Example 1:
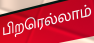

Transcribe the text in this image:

பிறரெல்லாம்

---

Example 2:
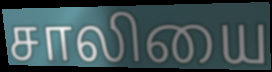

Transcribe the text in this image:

சாலியை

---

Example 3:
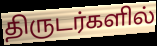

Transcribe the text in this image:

திருடர்களில்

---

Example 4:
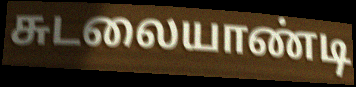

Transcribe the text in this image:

சுடலையாண்டி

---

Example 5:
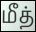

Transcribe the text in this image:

மீத்